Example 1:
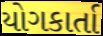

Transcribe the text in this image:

યોગકાર્તા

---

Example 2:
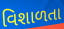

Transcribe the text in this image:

વિશાળતા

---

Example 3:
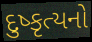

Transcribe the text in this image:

દુષ્કૃત્યનો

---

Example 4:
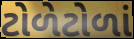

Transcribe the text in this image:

ટોળેટોળાં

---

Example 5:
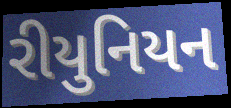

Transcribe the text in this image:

રીયુનિયન